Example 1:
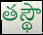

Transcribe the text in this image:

తస్థౌ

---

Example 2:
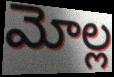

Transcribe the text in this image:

మోల్ల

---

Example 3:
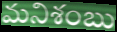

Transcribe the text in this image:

మనిశంబు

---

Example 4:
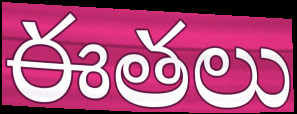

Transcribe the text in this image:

ఈతలు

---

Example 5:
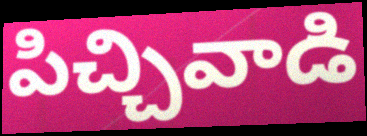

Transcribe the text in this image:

పిచ్చివాడి